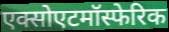
एक्सोएटमॉस्फेरिक